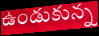
ఉండుకున్న